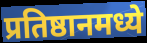
प्रतिष्ठानमध्ये